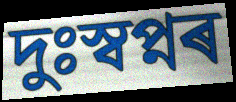
দুঃস্বপ্নৰ